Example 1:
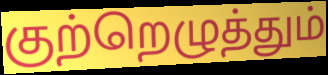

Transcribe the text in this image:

குற்றெழுத்தும்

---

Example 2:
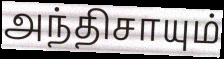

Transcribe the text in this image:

அந்திசாயும்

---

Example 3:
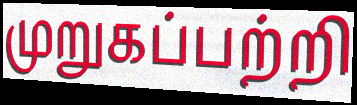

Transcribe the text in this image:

முறுகப்பற்றி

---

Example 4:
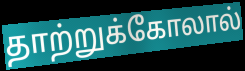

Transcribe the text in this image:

தாற்றுக்கோலால்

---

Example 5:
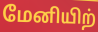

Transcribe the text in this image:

மேனியிற்